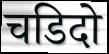
चडिदो